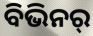
ବିଭିନର୍